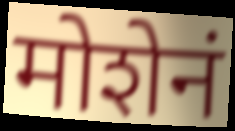
मोशेनं